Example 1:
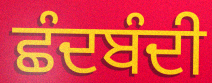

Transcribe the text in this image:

ਛੰਦਬੰਦੀ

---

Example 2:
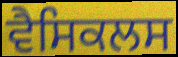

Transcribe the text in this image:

ਵੈਸਿਕਲਸ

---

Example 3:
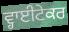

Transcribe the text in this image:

ਵ੍ਹਾਈਟੇਕਰ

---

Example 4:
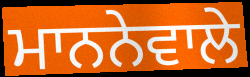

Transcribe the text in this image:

ਮਾਨਨੇਵਾਲੇ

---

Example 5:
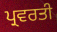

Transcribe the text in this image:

ਪ੍ਰਵਰਤੀ